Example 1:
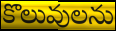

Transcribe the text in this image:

కొలువులను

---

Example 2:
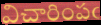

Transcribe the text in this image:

విచారింపఁ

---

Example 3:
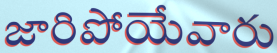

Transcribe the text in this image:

జారిపోయేవారు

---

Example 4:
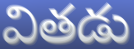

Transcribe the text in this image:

వితడు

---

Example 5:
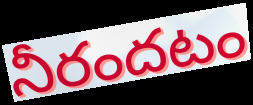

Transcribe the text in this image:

నీరందటం